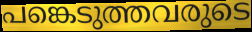
പങ്കെടുത്തവരുടെ